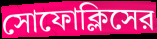
সোফোক্লিসের